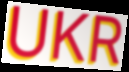
UKR